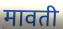
मावती